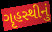
ગૃહસ્થીનું